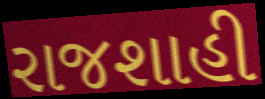
રાજશાહી